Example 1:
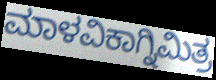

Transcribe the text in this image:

ಮಾಳವಿಕಾಗ್ನಿಮಿತ್ರ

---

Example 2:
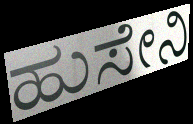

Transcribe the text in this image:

ಹುಸೇನಿ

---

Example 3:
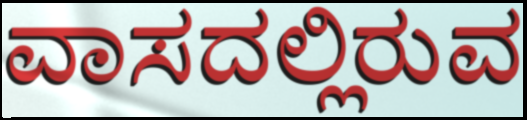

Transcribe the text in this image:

ವಾಸದಲ್ಲಿರುವ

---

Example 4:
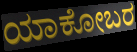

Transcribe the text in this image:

ಯಾಕೋಬರ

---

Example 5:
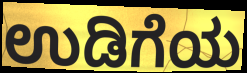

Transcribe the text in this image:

ಉಡಿಗೆಯ